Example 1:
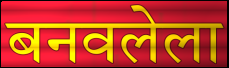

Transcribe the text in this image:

बनवलेला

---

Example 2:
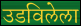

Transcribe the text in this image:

उडविलेला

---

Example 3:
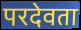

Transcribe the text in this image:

परदेवता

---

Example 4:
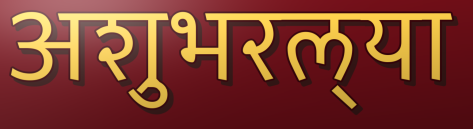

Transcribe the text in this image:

अश्रुभरल्या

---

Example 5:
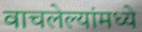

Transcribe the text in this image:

वाचलेल्यांमध्ये